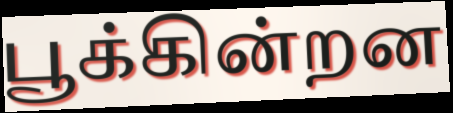
பூக்கின்றன